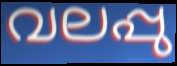
വലപ്പു